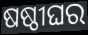
ଷଷ୍ଠୀଘର